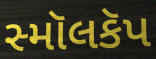
સ્મૉલકૅપ